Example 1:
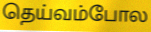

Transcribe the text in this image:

தெய்வம்போல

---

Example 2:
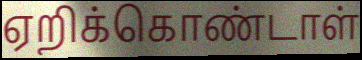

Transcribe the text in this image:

ஏறிக்கொண்டாள்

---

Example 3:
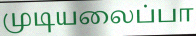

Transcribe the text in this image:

முடியலைப்பா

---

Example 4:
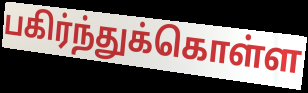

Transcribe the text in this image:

பகிர்ந்துக்கொள்ள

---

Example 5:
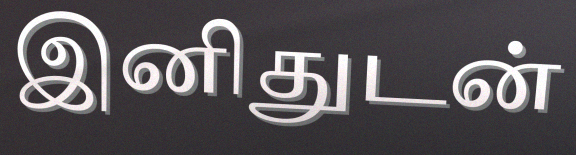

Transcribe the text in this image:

இனிதுடன்